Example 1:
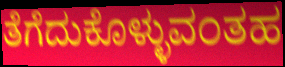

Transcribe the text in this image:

ತೆಗೆದುಕೊಳ್ಳುವಂತಹ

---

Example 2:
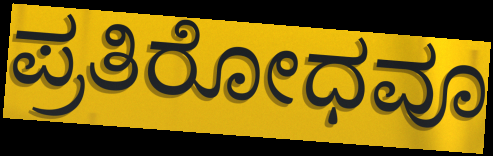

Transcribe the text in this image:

ಪ್ರತಿರೋಧವೂ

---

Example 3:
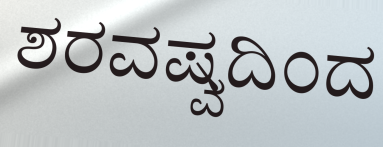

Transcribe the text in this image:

ಶರವಷ್ವದಿಂದ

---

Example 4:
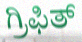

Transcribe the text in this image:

ಗ್ರಿಫಿತ್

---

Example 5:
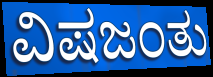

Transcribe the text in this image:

ವಿಷಜಂತು